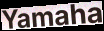
Yamaha